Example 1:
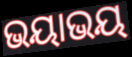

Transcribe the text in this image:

ଭୟାଭୟ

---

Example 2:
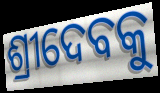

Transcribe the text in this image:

ଶ୍ରୀଦେବକୁ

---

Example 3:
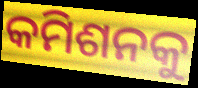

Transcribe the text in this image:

କମିଶନକୁ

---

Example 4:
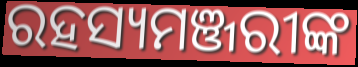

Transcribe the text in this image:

ରହସ୍ୟମଞ୍ଜରୀଙ୍କ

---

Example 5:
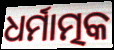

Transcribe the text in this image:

ଧର୍ମାତ୍ମକ